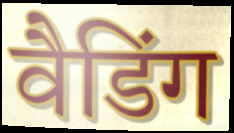
वैडिंग